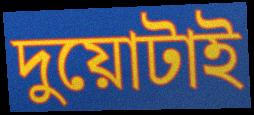
দুয়োটাই